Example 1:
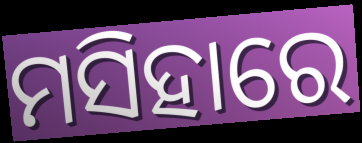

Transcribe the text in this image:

ମସିହାରେ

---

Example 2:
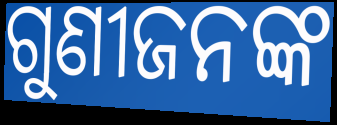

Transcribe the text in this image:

ଗୁଣୀଜନଙ୍କ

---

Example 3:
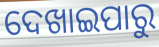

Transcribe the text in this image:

ଦେଖାଇପାରୁ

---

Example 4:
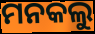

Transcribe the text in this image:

ମନକଲୁ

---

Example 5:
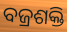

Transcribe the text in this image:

ବଜ୍ରଶକ୍ତି